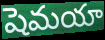
షెమయా